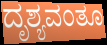
ದೃಶ್ಯವಂತೂ